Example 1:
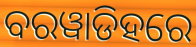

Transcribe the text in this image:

ବରୱାଡିହରେ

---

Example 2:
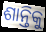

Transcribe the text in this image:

ଶାନ୍ତିକୁ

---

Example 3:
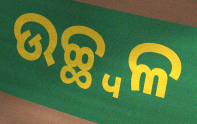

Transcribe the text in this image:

ଉଚ୍ଛ୍ୱଳ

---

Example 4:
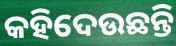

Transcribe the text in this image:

କହିଦେଉଛନ୍ତି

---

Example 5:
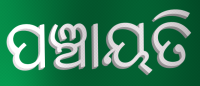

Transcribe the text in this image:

ପଞ୍ଚାୟତି